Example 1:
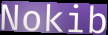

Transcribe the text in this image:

Nokib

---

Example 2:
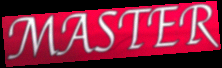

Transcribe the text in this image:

MASTER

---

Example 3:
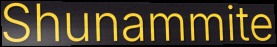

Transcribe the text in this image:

Shunammite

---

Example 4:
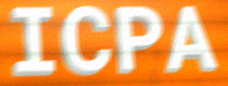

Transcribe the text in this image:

ICPA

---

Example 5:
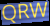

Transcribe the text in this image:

QRW